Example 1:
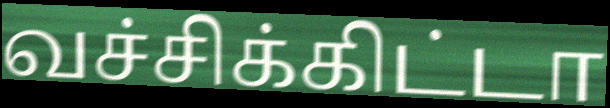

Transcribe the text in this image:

வச்சிக்கிட்டா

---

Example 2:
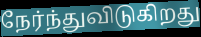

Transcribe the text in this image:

நேர்ந்துவிடுகிறது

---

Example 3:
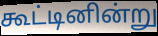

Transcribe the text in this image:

கூட்டினின்று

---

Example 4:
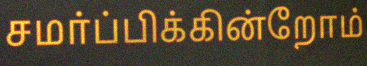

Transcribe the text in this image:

சமர்ப்பிக்கின்றோம்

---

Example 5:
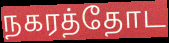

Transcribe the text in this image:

நகரத்தோட